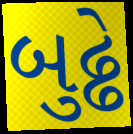
બુઢ્ઢે